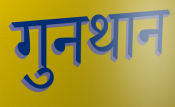
गुनथान